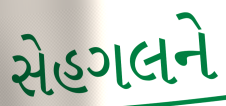
સેહગલને